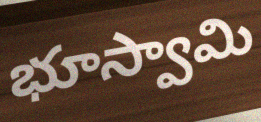
భూస్వామి